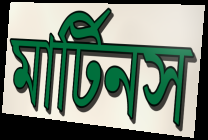
মার্টিনস